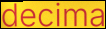
decima